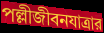
পল্লীজীবনযাত্রার